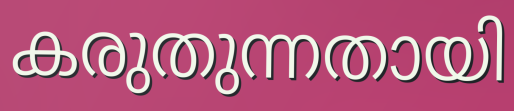
കരുതുന്നതായി